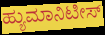
ಹ್ಯುಮಾನಿಟೀಸ್